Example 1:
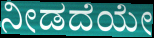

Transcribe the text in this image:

ನೀಡದೆಯೇ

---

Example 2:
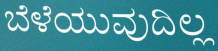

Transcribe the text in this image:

ಬೆಳೆಯುವುದಿಲ್ಲ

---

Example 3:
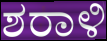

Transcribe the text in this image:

ಶರಾಳಿ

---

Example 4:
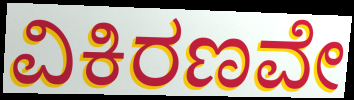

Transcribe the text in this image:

ವಿಕಿರಣವೇ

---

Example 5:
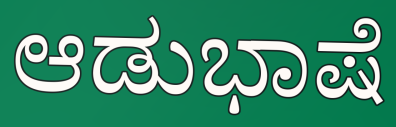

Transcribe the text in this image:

ಆಡುಭಾಷೆ